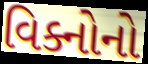
વિક્નોનો